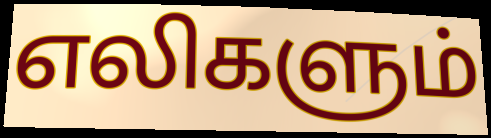
எலிகளும்